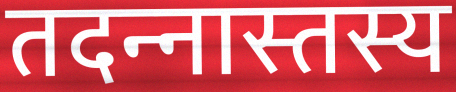
तदन्नास्तस्य